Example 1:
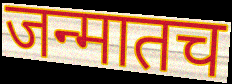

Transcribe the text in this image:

जन्मातच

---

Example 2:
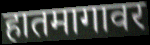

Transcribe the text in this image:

हातमागावर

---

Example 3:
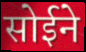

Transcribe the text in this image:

सोईने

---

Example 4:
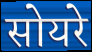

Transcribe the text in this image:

सोयरे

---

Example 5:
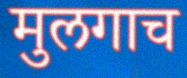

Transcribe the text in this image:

मुलगाच